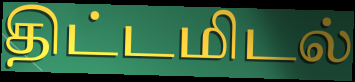
திட்டமிடல்